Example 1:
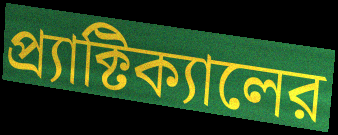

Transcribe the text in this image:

প্র্যাক্টিক্যালের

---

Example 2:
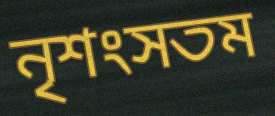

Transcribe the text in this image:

নৃশংসতম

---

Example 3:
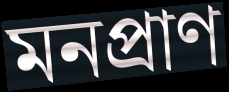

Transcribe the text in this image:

মনপ্রাণ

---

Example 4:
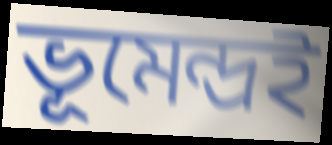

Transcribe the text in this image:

ভূমেন্দ্রই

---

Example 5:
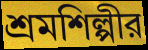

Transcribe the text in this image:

শ্রমশিল্পীর